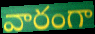
వారంగా